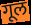
गूल